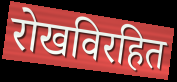
रोखविरहित